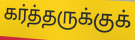
கர்த்தருக்குக்